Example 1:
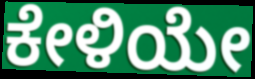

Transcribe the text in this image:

ಕೇಳಿಯೇ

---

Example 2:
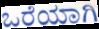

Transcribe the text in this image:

ಒರೆಯಾಗಿ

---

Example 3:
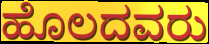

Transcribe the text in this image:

ಹೊಲದವರು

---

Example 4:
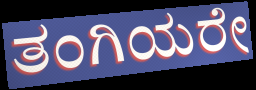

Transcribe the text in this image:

ತಂಗಿಯರೇ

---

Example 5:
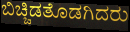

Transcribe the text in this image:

ಬಿಚ್ಚಿಡತೊಡಗಿದರು